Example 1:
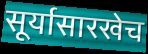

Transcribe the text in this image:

सूर्यासारखेच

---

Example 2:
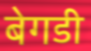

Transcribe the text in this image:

बेगडी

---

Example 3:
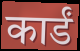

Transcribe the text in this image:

कार्डं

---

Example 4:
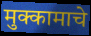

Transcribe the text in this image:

मुक्कामाचे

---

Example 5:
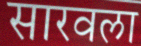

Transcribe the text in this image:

सारवला